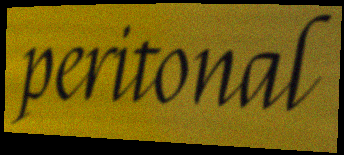
peritonal